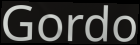
Gordo